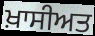
ਖ਼ਾਸੀਅਤ